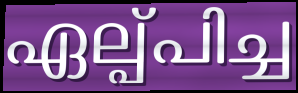
ഏല്പ്പിച്ച